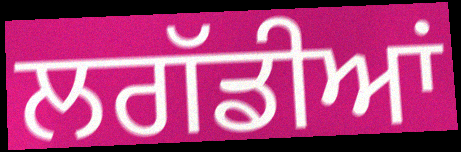
ਲਗੱਡੀਆਂ